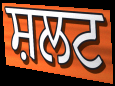
ਸ਼ਲਟ